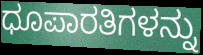
ಧೂಪಾರತಿಗಳನ್ನು